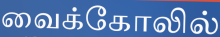
வைக்கோலில்